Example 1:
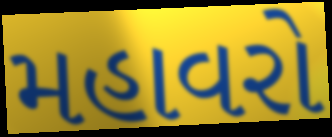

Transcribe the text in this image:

મહાવરો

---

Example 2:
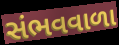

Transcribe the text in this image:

સંભવવાળા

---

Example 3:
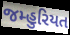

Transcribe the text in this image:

જમ્હુરિયત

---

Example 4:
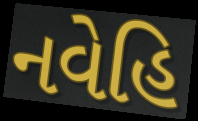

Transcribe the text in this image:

નવેહિ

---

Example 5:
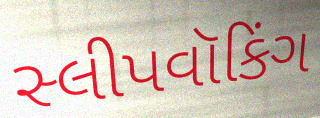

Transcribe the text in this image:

સ્લીપવૉકિંગ